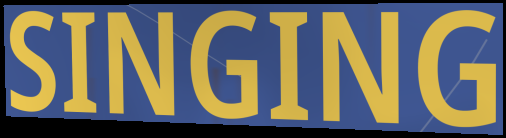
SINGING